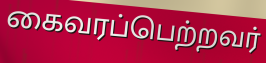
கைவரப்பெற்றவர்